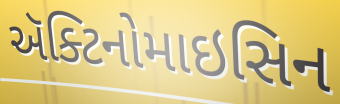
ઍક્ટિનોમાઇસિન